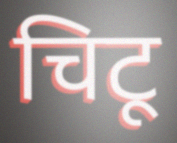
चिटू